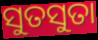
ସୁତସୁତା